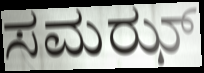
ಸಮಝ್